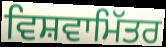
ਵਿਸ਼ਵਾਮਿੱਤਰ